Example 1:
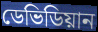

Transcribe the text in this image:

ডেভিডিয়ান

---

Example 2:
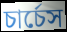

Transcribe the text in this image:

চার্চেস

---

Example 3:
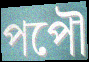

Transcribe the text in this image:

পপৌ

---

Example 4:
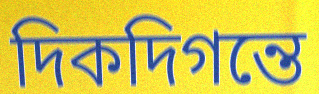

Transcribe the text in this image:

দিকদিগন্তে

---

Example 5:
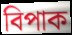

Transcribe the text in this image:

বিপাক